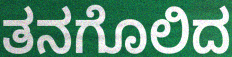
ತನಗೊಲಿದ